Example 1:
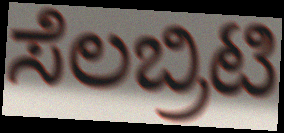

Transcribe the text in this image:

ಸೆಲಬ್ರಿಟಿ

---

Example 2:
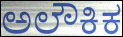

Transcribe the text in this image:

ಅಲೌಕಿಕ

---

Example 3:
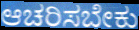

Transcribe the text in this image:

ಆಚರಿಸಬೇಕು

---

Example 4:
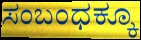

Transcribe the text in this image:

ಸಂಬಂಧಕ್ಕೂ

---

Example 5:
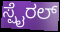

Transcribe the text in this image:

ಸ್ಪೈರಲ್